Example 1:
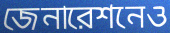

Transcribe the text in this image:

জেনারেশনেও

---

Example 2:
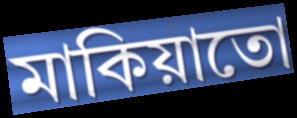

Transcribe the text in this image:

মাকিয়াতো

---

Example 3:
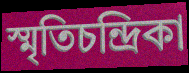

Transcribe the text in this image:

স্মৃতিচন্দ্রিকা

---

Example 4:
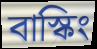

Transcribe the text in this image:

বাস্কিং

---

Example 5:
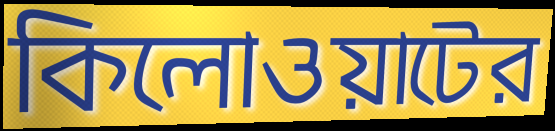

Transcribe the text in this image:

কিলোওয়াটের